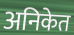
अनिकेत